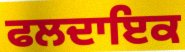
ਫਲਦਾਇਕ